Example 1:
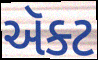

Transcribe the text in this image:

ઍૅક્ટ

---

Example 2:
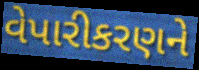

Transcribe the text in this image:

વેપારીકરણને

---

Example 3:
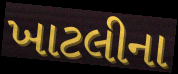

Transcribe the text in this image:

ખાટલીના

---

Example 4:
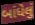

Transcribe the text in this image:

બાંધેલું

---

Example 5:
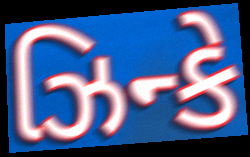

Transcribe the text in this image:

ઝિન્કે